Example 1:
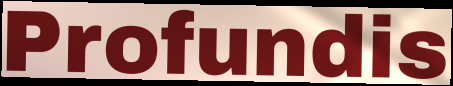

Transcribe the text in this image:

Profundis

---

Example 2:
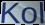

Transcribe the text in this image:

Kol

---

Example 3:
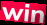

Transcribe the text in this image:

win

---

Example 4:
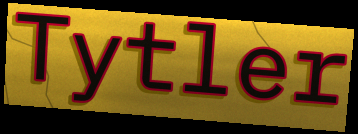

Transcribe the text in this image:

Tytler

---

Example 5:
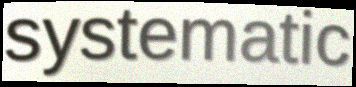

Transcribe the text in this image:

systematic